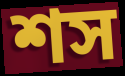
শস